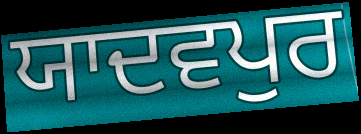
ਯਾਦਵਪੁਰ